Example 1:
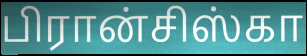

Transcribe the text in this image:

பிரான்சிஸ்கா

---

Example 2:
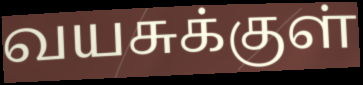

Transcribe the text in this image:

வயசுக்குள்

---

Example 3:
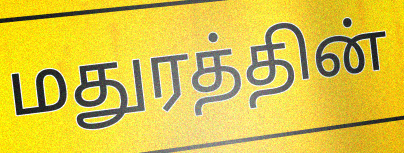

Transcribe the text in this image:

மதுரத்தின்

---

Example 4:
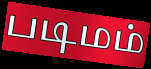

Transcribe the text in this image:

படிமம்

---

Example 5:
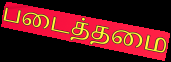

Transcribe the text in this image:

படைத்தமை